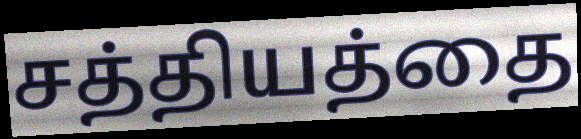
சத்தியத்தை